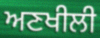
ਅਣਖੀਲੀ